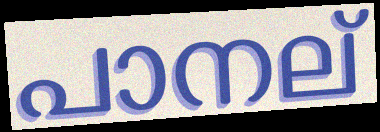
പാനല്